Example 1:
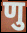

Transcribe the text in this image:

णु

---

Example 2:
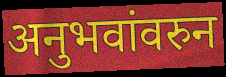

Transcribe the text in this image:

अनुभवांवरुन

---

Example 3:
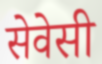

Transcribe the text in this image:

सेवेसी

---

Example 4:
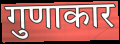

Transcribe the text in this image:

गुणाकार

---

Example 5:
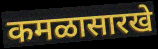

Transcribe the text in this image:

कमळासारखे